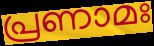
പ്രണാമഃ